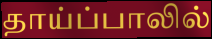
தாய்ப்பாலில்